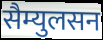
सैम्युलसन